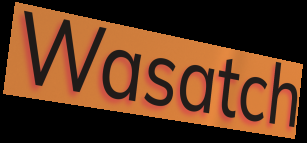
Wasatch